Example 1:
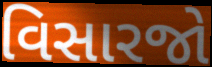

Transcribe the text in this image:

વિસારજો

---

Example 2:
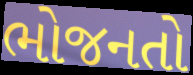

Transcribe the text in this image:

ભોજનતો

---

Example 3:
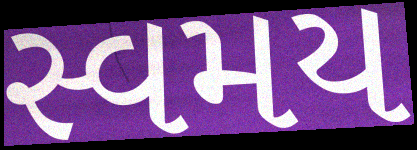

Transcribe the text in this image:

સ્વમય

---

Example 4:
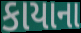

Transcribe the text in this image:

કાયાના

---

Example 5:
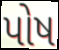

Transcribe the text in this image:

પોષ